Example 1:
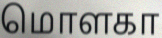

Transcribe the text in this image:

மொளகா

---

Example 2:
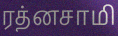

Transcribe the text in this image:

ரத்னசாமி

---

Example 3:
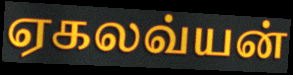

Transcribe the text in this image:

ஏகலவ்யன்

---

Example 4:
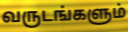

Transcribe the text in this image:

வருடங்களும்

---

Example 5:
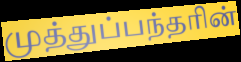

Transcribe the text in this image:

முத்துப்பந்தரின்